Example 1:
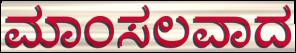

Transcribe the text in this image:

ಮಾಂಸಲವಾದ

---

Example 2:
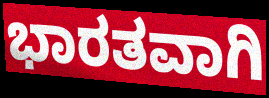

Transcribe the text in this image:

ಭಾರತವಾಗಿ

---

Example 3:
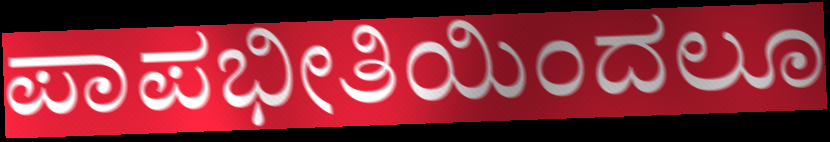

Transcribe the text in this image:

ಪಾಪಭೀತಿಯಿಂದಲೂ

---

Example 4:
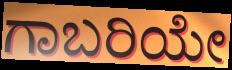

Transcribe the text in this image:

ಗಾಬರಿಯೇ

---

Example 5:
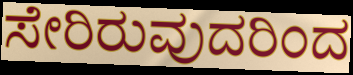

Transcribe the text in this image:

ಸೇರಿರುವುದರಿಂದ